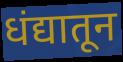
धंद्यातून